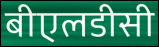
बीएलडीसी